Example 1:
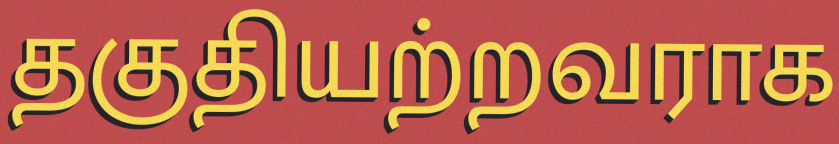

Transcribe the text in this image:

தகுதியற்றவராக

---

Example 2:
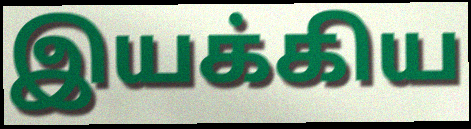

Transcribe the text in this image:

இயக்கிய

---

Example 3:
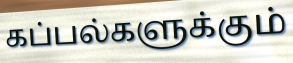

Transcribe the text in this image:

கப்பல்களுக்கும்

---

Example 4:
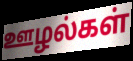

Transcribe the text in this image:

ஊழல்கள்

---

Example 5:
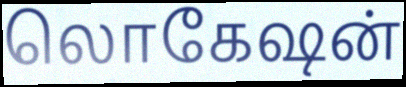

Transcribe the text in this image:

லொகேஷன்